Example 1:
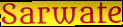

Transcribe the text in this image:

Sarwate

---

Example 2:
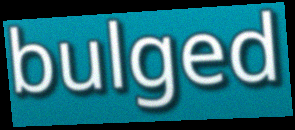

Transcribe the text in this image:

bulged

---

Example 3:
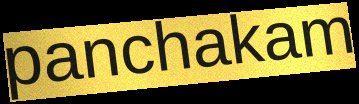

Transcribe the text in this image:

panchakam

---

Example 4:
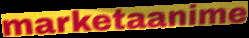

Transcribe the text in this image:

marketaanime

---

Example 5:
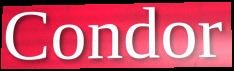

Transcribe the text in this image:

Condor